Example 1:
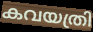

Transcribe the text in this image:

കവയത്രി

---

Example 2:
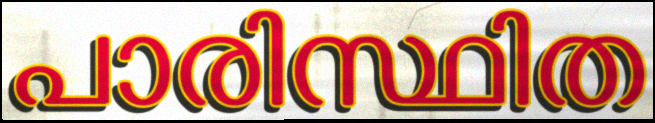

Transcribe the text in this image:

പാരിസ്ഥിത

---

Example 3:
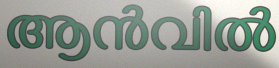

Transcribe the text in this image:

ആൻവിൽ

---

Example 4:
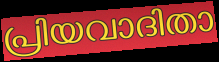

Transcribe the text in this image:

പ്രിയവാദിതാ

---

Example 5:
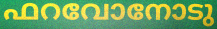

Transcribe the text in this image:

ഫറവോനോടു